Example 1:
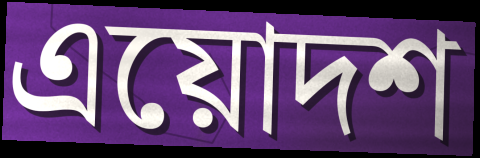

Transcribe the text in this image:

এয়োদশ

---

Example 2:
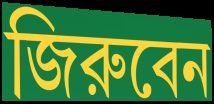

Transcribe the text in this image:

জিরুবেন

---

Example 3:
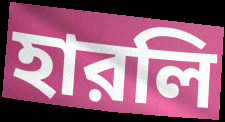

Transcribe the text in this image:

হারলি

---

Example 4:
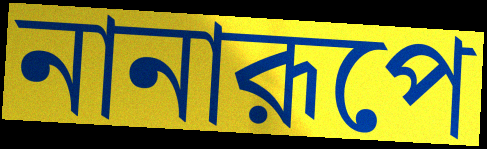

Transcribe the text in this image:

নানারূপে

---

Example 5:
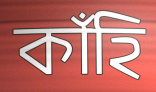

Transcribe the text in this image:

কাঁহি